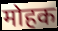
मोहक